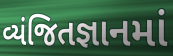
વ્યંજિતજ્ઞાનમાં